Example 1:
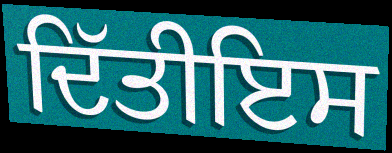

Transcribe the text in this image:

ਦਿੱਤੀਇਸ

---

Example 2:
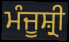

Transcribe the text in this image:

ਮੰਜੂਸ਼੍ਰੀ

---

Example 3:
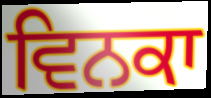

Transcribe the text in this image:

ਵਿਨਕਾ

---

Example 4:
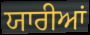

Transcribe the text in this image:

ਯਾਰੀਆਂ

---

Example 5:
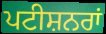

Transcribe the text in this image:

ਪਟੀਸ਼ਨਰਾਂ